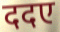
ददए